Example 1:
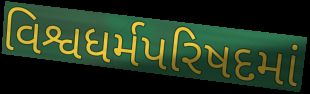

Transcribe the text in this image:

વિશ્વધર્મપરિષદમાં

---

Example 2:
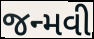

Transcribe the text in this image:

જન્મવી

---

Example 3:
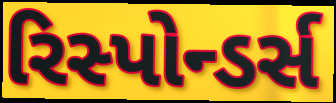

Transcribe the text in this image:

રિસ્પોન્ડર્સ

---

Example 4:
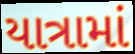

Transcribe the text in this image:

યાત્રામાં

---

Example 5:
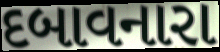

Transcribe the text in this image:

દબાવનારા